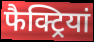
फैक्ट्रियां